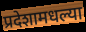
प्रदेशामधल्या